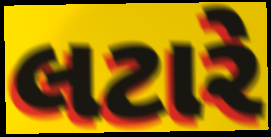
લટારે